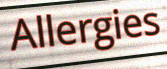
Allergies